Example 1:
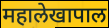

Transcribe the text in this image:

महालेखापाल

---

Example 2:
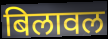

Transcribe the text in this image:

बिलावल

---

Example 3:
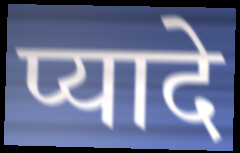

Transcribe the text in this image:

प्यादे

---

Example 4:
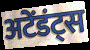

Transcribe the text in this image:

अटेंडंट्स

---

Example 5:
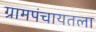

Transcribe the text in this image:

ग्रामपंचायतला